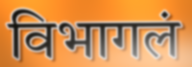
विभागलं